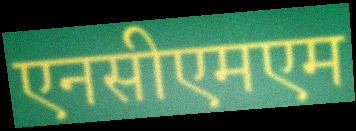
एनसीएमएम